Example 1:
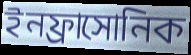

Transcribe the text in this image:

ইনফ্রাসোনিক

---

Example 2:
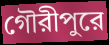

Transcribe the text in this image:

গৌরীপুরে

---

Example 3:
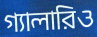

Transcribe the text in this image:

গ্যালারিও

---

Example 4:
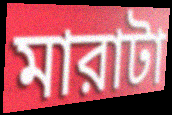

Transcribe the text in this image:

মারাটা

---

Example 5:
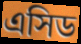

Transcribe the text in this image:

এসিড